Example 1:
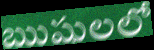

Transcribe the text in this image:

ఋషులలో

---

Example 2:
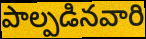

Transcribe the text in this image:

పాల్పడినవారి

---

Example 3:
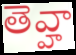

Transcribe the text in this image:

తెవ్హా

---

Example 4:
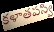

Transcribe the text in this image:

కళాతపస్వి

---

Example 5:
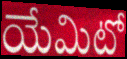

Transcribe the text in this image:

యేమిటో